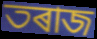
তৰাজ